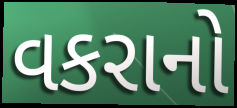
વકરાનો